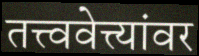
तत्त्ववेत्त्यांवर